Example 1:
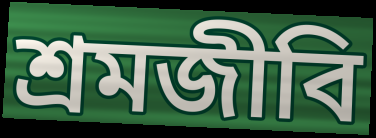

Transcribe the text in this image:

শ্রমজীবি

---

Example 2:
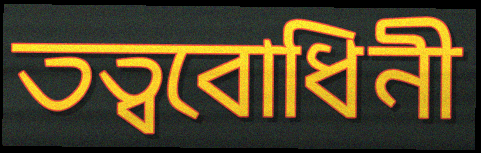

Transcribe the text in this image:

তত্ববোধিনী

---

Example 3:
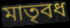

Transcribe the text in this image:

মাতৃবধ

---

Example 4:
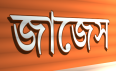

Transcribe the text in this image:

জাজেস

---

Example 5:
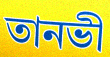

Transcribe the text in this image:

তানভী